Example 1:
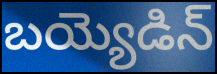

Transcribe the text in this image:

బయ్యెడిన్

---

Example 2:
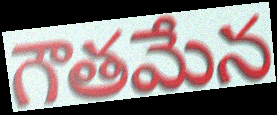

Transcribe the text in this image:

గౌతమేన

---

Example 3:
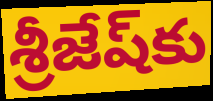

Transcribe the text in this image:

శ్రీజేష్‌కు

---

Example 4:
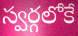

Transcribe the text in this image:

స్వర్గలోకే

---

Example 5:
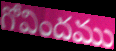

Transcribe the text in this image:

గోవిందము